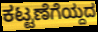
ಕಟ್ಟಣೆಗೆಯ್ದದ